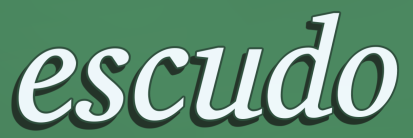
escudo